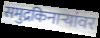
समुद्रकिनाऱ्यांवर